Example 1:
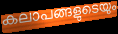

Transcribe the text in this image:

കലാപങ്ങളുടെയും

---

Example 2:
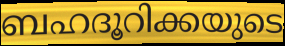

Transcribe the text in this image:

ബഹദൂറിക്കയുടെ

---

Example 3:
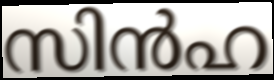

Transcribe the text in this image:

സിൻഹ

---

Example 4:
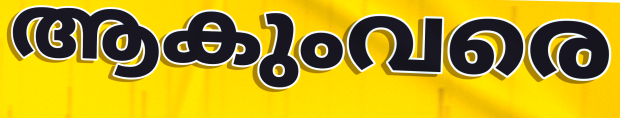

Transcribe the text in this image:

ആകുംവരെ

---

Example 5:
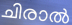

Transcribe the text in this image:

ചിരാൽ